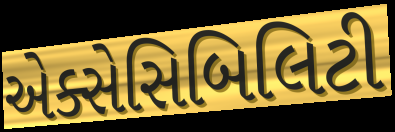
એક્સેસિબિલિટી